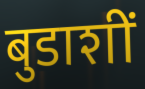
बुडाशीं